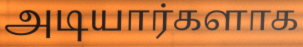
அடியார்களாக